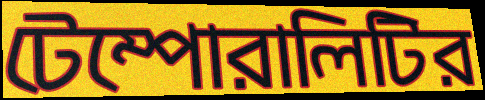
টেম্পোরালিটির